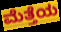
ಮೆತ್ತೆಯ